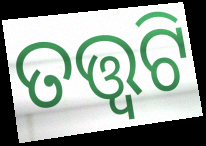
ତତ୍ତ୍ଵଟି